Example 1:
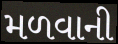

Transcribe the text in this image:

મળવાની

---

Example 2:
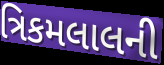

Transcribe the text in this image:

ત્રિકમલાલની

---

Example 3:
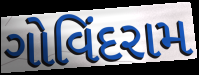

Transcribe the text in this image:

ગોવિંદરામ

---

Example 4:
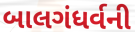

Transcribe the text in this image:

બાલગંધર્વની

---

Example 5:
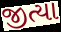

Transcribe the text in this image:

જીત્યા